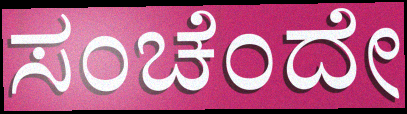
ಸಂಚೆಂದೇ